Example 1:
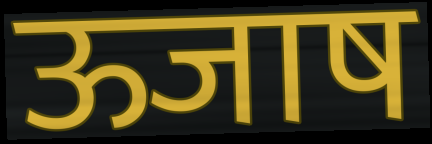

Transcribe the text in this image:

ऊजाष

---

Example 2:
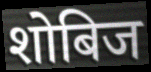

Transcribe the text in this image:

शोबिज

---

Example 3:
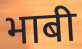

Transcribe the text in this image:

भाबी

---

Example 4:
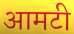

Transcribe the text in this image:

आमटी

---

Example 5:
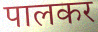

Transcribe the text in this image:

पालकर